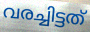
വരച്ചിട്ടത്